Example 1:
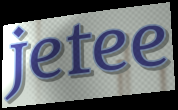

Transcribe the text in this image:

jetee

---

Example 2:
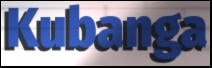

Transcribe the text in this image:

Kubanga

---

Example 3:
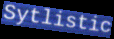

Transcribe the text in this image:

Sytlistic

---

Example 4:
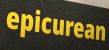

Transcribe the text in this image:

epicurean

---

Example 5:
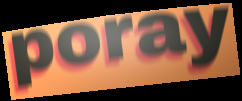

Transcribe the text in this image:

poray